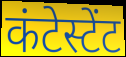
कंटेस्टेंट